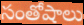
సంతోషాలు